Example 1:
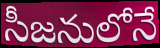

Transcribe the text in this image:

సీజనులోనే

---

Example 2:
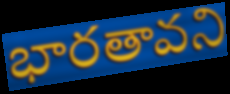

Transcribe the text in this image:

భారతావని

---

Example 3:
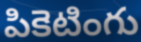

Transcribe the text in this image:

పికెటింగు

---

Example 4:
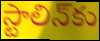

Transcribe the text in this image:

స్టాలిన్‌కు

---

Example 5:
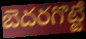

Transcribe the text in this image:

బెదరగొట్టే